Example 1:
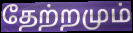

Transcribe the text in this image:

தேற்றமும்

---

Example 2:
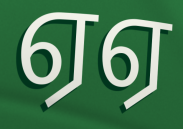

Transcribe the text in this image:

ஏஏ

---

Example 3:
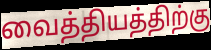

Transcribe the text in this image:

வைத்தியத்திற்கு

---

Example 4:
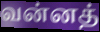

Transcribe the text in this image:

வன்னத்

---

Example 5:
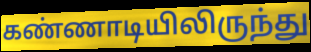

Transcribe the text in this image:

கண்ணாடியிலிருந்து